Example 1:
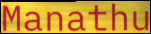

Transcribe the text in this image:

Manathu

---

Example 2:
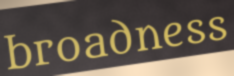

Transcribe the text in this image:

broadness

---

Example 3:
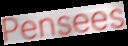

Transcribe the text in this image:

Pensees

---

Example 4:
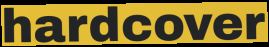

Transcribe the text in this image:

hardcover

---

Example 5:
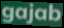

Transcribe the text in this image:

gajab